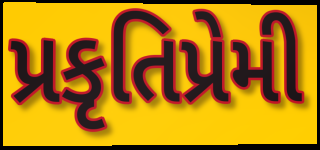
પ્રકૃતિપ્રેમી